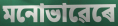
মনোভাৱেৰে